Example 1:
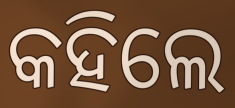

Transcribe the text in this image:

କହିଲେ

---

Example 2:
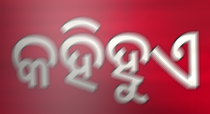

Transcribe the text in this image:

କହିହୁଏ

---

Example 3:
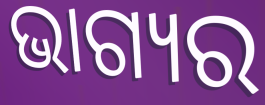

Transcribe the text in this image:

ଭାଗ୍ୟର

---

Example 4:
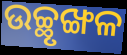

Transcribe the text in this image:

ଉଚ୍ଛୃଙ୍ଖଳ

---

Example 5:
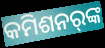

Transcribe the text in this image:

କମିଶନର୍‌ଙ୍କ